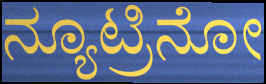
ನ್ಯೂಟ್ರಿನೋ